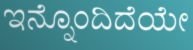
ಇನ್ನೊಂದಿದೆಯೇ